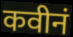
कवीनं